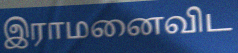
இராமனைவிட